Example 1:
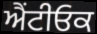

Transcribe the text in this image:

ਐਂਟੀਓਕ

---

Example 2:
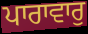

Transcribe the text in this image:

ਪਾਰਾਵਾਰੁ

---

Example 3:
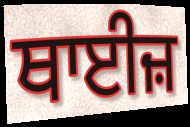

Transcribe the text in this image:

ਥਾਈਜ਼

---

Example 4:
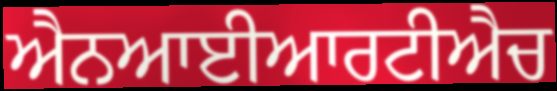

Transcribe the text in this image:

ਐਨਆਈਆਰਟੀਐਚ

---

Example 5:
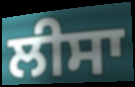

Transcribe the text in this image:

ਲੀਸਾ